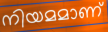
നിയമമാണ്